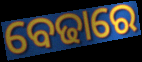
ବେଢାରେ